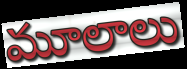
మూలాలు